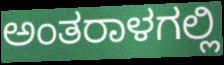
ಅಂತರಾಳಗಲ್ಲಿ